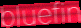
bluefin